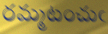
రమ్మటంచుఁ